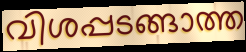
വിശപ്പടങ്ങാത്ത